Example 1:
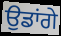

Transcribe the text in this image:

ਉਡਾਂਗੇ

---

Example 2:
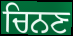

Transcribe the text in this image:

ਚਿਨਣ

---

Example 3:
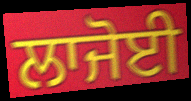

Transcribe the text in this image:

ਲਾਜੋਈ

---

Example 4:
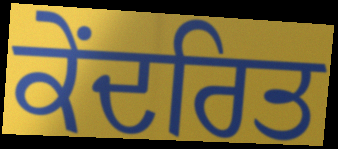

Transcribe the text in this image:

ਕੇਂਦਰਿਤ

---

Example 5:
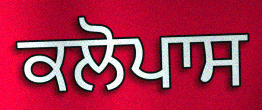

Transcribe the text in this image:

ਕਲੋਪਾਸ